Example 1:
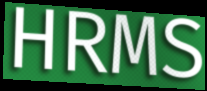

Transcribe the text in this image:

HRMS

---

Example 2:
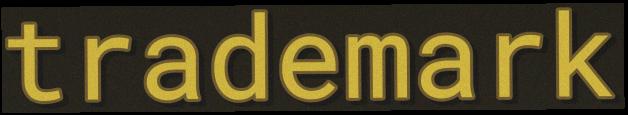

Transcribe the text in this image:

trademark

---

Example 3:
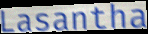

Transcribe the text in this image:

Lasantha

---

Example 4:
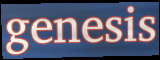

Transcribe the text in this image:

genesis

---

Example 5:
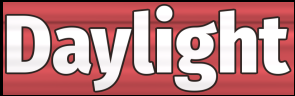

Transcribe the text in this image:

Daylight